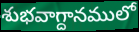
శుభవాగ్దానములో